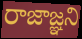
రాజాజ్ఞని